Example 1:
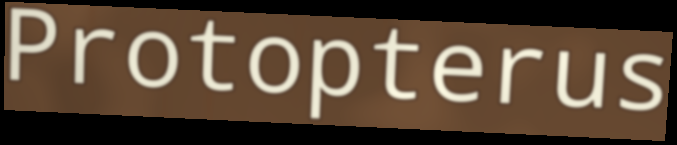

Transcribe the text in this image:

Protopterus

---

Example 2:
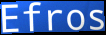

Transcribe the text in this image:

Efros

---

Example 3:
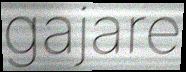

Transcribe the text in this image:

gajare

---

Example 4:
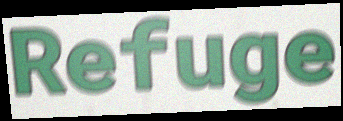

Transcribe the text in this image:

Refuge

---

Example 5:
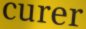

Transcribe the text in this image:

curer